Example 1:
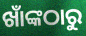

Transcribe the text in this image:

ଖାଁଙ୍କଠାରୁ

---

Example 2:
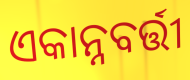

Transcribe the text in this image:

ଏକାନ୍ନବର୍ତ୍ତୀ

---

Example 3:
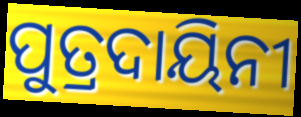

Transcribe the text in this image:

ପୁତ୍ରଦାୟିନୀ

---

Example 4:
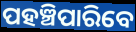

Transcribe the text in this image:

ପହଞ୍ଚିପାରିବେ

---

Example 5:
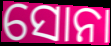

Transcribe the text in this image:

ସୋନା